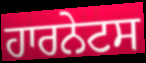
ਹਾਰਨੇਟਸ